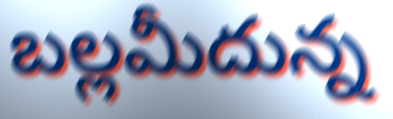
బల్లమీదున్న